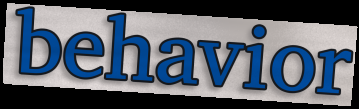
behavior